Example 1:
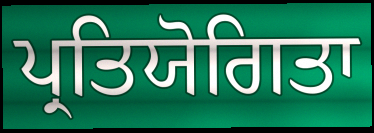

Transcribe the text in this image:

ਪ੍ਰਤਿਯੋਗਿਤਾ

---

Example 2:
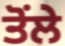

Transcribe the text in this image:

ਤੋਂਲੇ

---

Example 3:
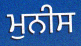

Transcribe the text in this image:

ਮੁਨੀਸ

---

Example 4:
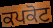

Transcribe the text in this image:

ਕਪਕੋਟ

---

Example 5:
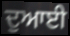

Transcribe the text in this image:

ਦੁਆਈ